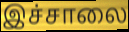
இச்சாலை